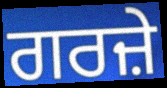
ਗਰਜ਼ੇ